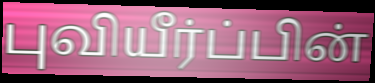
புவியீர்ப்பின்